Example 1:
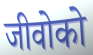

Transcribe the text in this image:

जीवोको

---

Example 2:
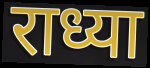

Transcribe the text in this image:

राध्या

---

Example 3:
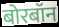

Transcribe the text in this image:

बोरबॉन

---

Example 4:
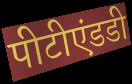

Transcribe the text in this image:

पीटीएंडडी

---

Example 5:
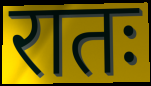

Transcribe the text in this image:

रातः